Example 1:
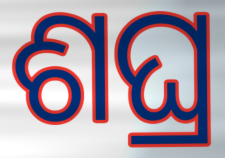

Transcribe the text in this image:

ଶଘ୍ର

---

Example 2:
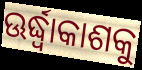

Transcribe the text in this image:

ଊର୍ଦ୍ଧ୍ୱାକାଶକୁ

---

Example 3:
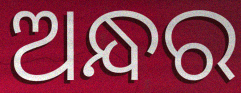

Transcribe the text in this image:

ଅନ୍ଧର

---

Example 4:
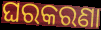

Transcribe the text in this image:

ଘରକରଣା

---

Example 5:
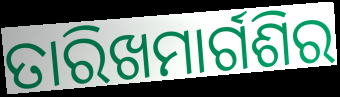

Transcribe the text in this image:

ତାରିଖମାର୍ଗଶିର